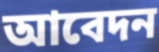
আবেদন